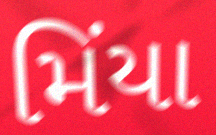
મિંયા